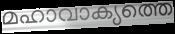
മഹാവാക്യത്തെ